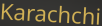
Karachchi